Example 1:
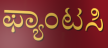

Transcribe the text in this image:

ಫ್ಯಾಂಟಸಿ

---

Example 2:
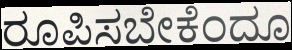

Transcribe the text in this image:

ರೂಪಿಸಬೇಕೆಂದೂ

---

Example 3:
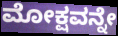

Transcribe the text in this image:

ಮೋಕ್ಷವನ್ನೇ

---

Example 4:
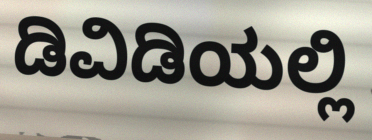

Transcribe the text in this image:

ಡಿವಿಡಿಯಲ್ಲಿ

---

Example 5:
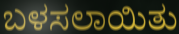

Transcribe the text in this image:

ಬಳಸಲಾಯಿತು